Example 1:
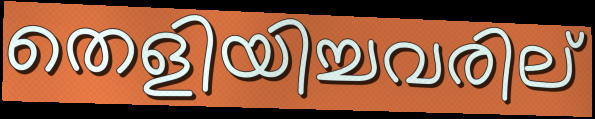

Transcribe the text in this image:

തെളിയിച്ചവരില്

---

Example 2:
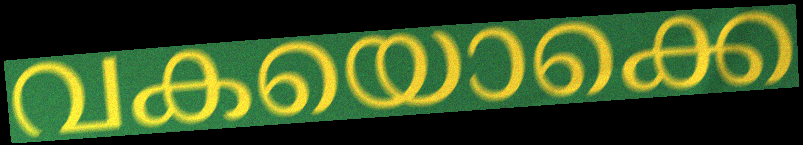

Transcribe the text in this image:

വകയൊക്കെ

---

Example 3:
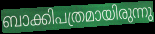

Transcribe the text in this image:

ബാക്കിപത്രമായിരുന്നു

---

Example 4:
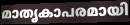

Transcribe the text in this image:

മാതൃകാപരമായി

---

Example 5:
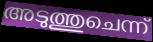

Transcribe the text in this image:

അടുത്തുചെന്ന്